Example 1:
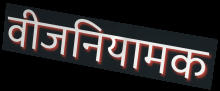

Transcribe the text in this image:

वीजनियामक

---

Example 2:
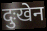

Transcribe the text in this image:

दुःखेन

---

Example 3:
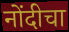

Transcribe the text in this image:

नोंदीचा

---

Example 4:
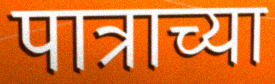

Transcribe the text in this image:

पात्राच्या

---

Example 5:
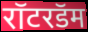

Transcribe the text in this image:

रॉटरडॅम